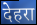
देहरा